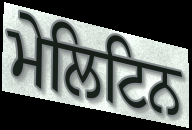
ਮੇਲਿਟਿਨ